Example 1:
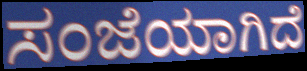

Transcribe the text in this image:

ಸಂಜೆಯಾಗಿದೆ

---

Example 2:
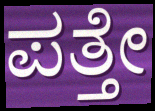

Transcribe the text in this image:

ಪತ್ತೇ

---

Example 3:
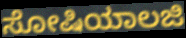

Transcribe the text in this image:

ಸೋಷಿಯಾಲಜಿ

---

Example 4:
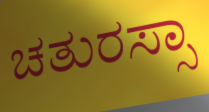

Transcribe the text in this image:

ಚತುರಸ್ಸಾ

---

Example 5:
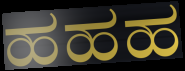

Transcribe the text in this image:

ಹಹಹ